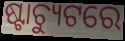
ଷ୍ଟାଚ୍ୟୁଟରେ